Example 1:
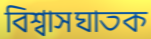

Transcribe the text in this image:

বিশ্বাসঘাতক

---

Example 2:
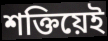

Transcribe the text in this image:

শক্তিয়েই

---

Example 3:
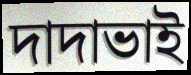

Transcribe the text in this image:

দাদাভাই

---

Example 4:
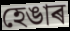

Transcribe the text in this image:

হেঙাৰ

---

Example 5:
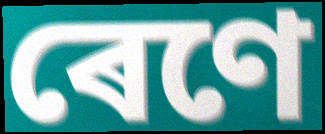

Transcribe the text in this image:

ৰেণে